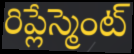
రిప్లేస్మెంట్